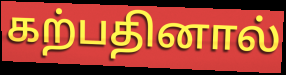
கற்பதினால்